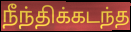
நீந்திக்கடந்த